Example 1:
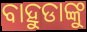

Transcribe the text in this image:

ବାହୁଡାଙ୍କୁ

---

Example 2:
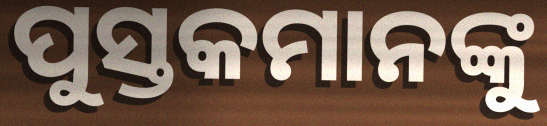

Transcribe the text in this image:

ପୁସ୍ତକମାନଙ୍କୁ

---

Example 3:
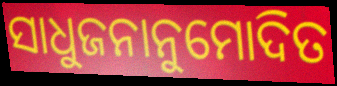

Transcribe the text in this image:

ସାଧୁଜନାନୁମୋଦିତ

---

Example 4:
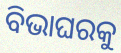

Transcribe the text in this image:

ବିଭାଘରକୁ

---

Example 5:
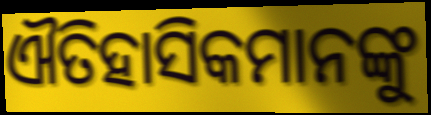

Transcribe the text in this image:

ଐତିହାସିକମାନଙ୍କୁ